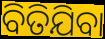
ବିତିଯିବା